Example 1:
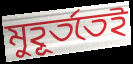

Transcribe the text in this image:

মুহূৰ্ততেই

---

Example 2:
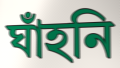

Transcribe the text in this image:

ঘাঁহনি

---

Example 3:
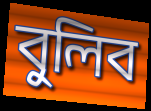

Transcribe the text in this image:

বুলিব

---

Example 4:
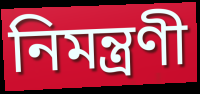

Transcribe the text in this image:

নিমন্ত্ৰণী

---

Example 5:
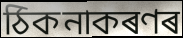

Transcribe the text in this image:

ঠিকনাকৰণৰ